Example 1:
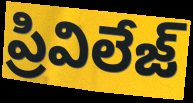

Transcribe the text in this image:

ప్రివిలేజ్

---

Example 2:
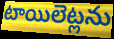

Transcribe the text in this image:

టాయిలెట్లను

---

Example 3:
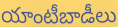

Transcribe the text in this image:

యాంటీబాడీలు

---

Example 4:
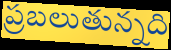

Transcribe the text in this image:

ప్రబలుతున్నది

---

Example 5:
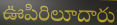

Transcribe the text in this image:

ఊపిరిలూదారు